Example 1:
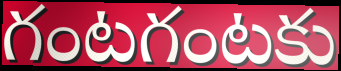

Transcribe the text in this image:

గంటగంటకు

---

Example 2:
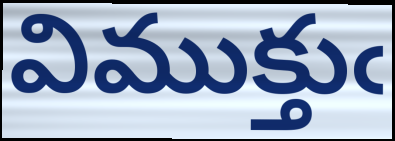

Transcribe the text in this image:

విముక్తుఁ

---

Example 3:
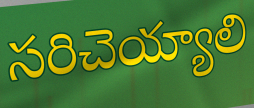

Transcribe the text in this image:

సరిచెయ్యాలి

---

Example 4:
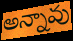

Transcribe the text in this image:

అన్నావు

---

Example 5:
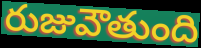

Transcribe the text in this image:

రుజువౌతుంది